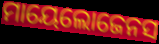
ମାୟେଲୋଜେନସ